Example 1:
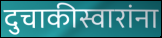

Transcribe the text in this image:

दुचाकीस्वारांना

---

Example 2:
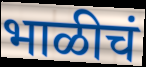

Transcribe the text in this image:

भाळीचं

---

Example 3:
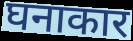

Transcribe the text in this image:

घनाकार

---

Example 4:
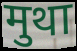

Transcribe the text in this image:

मुथा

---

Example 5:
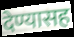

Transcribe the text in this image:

देण्यासह